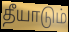
தீயாடும்